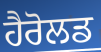
ਹੈਰੋਲਡ